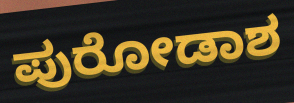
ಪುರೋಡಾಶ